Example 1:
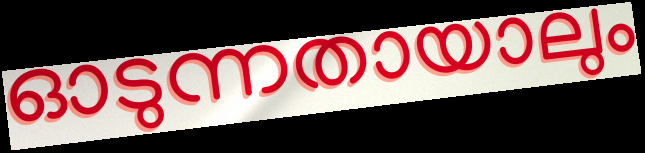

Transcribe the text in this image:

ഓടുന്നതായാലും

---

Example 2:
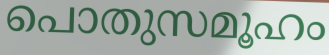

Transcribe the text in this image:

പൊതുസമൂഹം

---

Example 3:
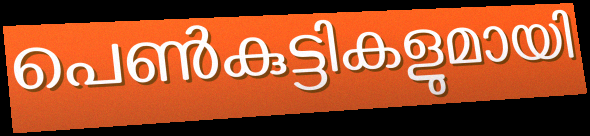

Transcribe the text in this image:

പെൺകുട്ടികളുമായി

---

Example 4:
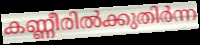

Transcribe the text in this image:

കണ്ണീരിൽക്കുതിർന്ന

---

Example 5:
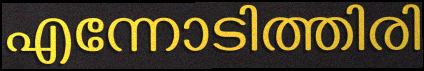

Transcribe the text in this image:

എന്നോടിത്തിരി